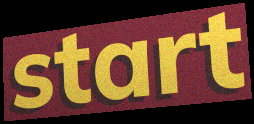
start